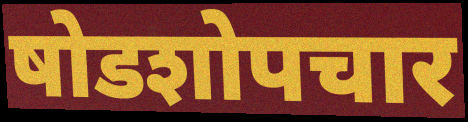
षोडशोपचार